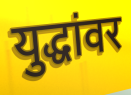
युद्धांवर